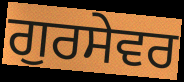
ਗੁਰਸੇਵਰ